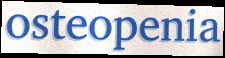
osteopenia